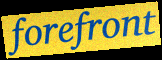
forefront